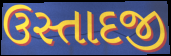
ઉસ્તાદજી